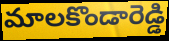
మాలకొండారెడ్డి